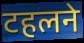
टहलने